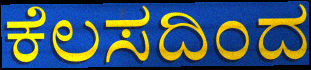
ಕೆಲಸದಿಂದ